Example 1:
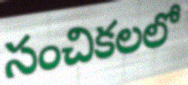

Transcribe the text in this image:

సంచికలలో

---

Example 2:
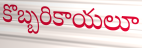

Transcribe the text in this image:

కొబ్బరికాయలూ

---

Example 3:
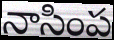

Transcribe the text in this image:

నాసింప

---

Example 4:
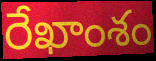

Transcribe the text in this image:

రేఖాంశం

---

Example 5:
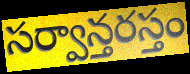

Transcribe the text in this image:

సర్వాన్తరస్తం